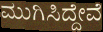
ಮುಗಿಸಿದ್ದೇವೆ